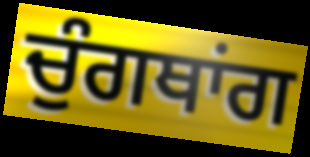
ਚੁੰਗਥਾਂਗ